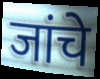
जांचे